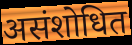
असंशोधित